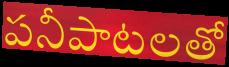
పనీపాటలతో